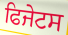
ਫਿਜੇਟਸ